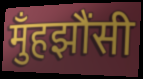
मुँहझौंसी